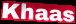
Khaas